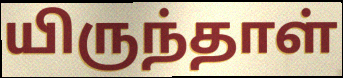
யிருந்தாள்